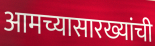
आमच्यासारख्यांची